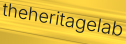
theheritagelab